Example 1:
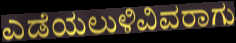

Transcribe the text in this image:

ಎಡೆಯಲುಳಿವಿವರಾಗು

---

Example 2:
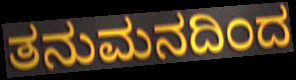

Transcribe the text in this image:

ತನುಮನದಿಂದ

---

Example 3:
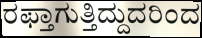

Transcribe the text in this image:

ರಫ್ತಾಗುತ್ತಿದ್ದುದರಿಂದ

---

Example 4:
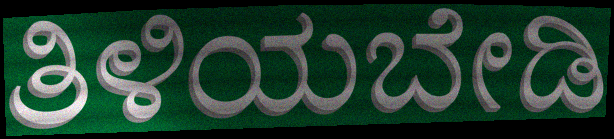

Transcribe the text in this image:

ತಿಳಿಯಬೇಡಿ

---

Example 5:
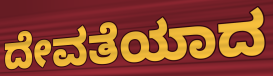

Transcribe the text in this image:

ದೇವತೆಯಾದ